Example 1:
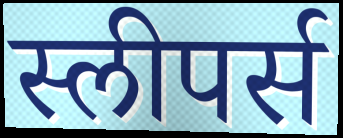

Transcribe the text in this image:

स्लीपर्स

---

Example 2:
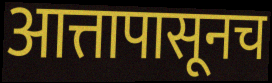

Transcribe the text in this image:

आत्तापासूनच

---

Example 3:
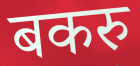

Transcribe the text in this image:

बकरु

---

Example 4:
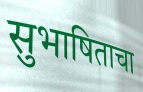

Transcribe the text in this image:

सुभाषिताचा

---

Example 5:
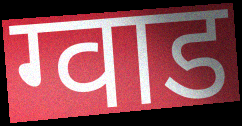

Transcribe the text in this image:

ग्वाड